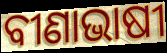
ବୀଣାଭାଷୀ